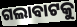
ଗଲାବାଟକୁ